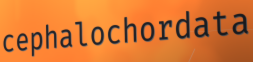
cephalochordata